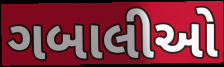
ગબાલીઓ